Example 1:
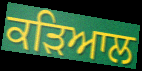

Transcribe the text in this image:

ਕੜਿਆਲ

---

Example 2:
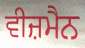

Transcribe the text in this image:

ਵੀਜ਼ਮੈਨ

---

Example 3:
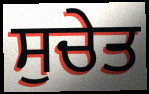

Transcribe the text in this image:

ਸੁਚੇਤ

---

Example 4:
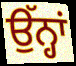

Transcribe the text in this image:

ਉੱਨ੍ਹਾਂ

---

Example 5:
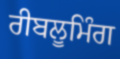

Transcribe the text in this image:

ਰੀਬਲੂਮਿੰਗ